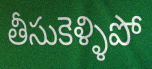
తీసుకెళ్ళిపో